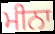
ਮੀਨਾ